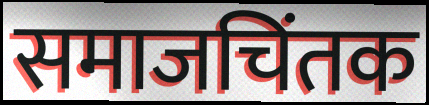
समाजचिंतक